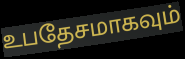
உபதேசமாகவும்